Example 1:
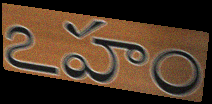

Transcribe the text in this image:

ఽహం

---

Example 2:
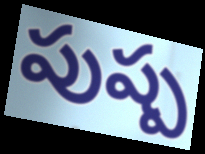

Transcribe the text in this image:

పుష్ప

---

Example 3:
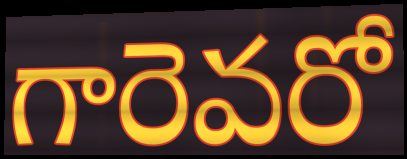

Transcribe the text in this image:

గారెవరో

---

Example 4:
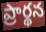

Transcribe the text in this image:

ప్రార్థన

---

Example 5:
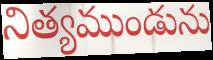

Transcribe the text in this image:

నిత్యముండును